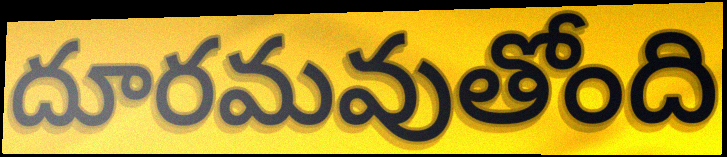
దూరమవుతోంది